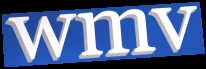
wmv